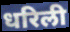
धरिली